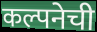
कल्पनेची